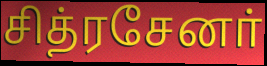
சித்ரசேனர்